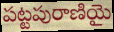
పట్టపురాణియై